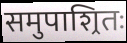
समुपाश्रितः